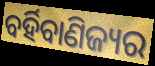
ବର୍ହିବାଣିଜ୍ୟର